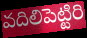
వదిలిపెట్టిరి